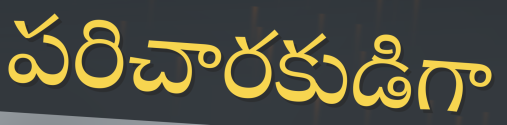
పరిచారకుడిగా